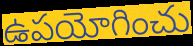
ఉపయోగించు